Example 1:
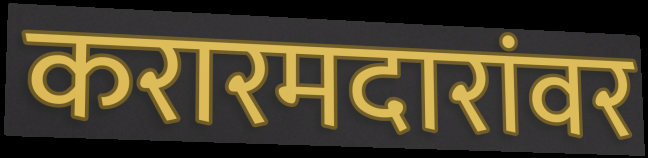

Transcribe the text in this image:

करारमदारांवर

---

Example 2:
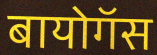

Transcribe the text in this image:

बायोगॅस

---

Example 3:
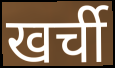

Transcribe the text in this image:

खर्ची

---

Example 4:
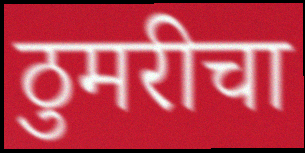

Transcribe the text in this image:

ठुमरीचा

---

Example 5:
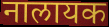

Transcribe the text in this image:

नालायक